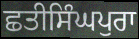
ਛਤੀਸਿੰਘਪੁਰਾ